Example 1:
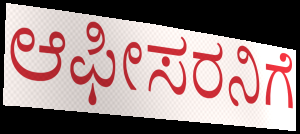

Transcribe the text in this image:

ಆಫೀಸರನಿಗೆ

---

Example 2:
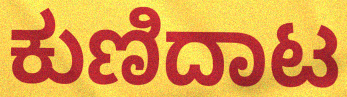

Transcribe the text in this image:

ಕುಣಿದಾಟ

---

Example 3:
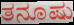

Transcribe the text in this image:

ತನೂಷು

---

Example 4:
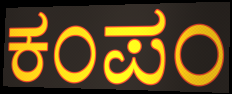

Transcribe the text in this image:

ಕಂಪಂ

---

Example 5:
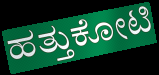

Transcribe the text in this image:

ಹತ್ತುಕೋಟಿ